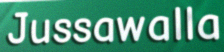
Jussawalla